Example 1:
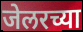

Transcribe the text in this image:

जेलरच्या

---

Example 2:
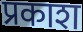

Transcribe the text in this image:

प्रकाश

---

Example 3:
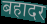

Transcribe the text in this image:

बहादर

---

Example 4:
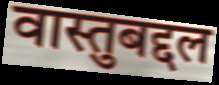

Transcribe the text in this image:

वास्तुबद्दल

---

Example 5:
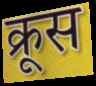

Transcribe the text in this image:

क्रूस